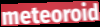
meteoroid